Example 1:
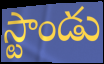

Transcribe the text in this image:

స్టాండు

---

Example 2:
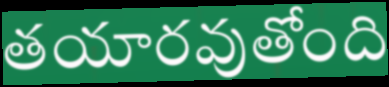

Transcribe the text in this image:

తయారవుతోంది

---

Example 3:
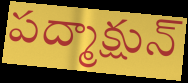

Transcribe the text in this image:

పద్మాక్షున్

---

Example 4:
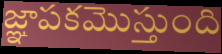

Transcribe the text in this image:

జ్ఞాపకమొస్తుంది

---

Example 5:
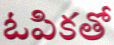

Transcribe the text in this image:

ఓపికతో